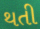
થતી